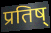
प्रतिष्